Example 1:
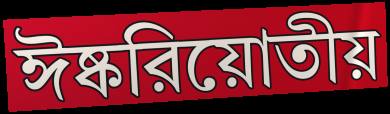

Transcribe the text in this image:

ঈষ্করিয়োতীয়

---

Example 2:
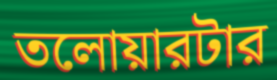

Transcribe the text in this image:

তলোয়ারটার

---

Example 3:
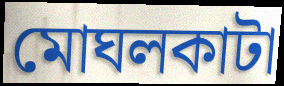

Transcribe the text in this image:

মোঘলকাটা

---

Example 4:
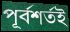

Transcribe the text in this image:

পূর্বশর্তই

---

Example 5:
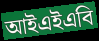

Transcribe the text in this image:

আইএইএবি